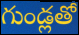
గుండ్లతో